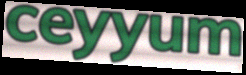
ceyyum